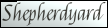
Shepherdyard